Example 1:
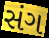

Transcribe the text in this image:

સંગ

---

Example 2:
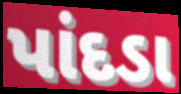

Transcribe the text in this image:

પાંદડા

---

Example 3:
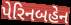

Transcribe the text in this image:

પેરિનબહેન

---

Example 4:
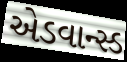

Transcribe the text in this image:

એડવાન્સ્ડ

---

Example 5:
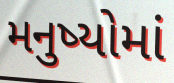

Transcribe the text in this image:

મનુષ્યોમાં